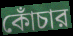
কোঁচার